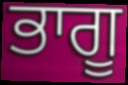
ਭਾਗੂ